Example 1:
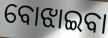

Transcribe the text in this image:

ବୋଝାଇବା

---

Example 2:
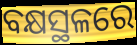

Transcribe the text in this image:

ବକ୍ଷସ୍ଥଳରେ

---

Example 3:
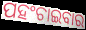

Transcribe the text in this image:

ପହଂଚାଇବାର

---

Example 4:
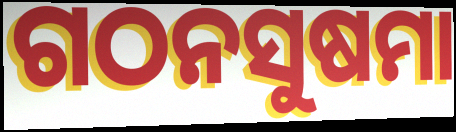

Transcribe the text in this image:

ଗଠନସୁଷମା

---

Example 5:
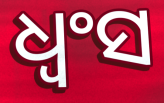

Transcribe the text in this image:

ଧ୍ଵଂସ